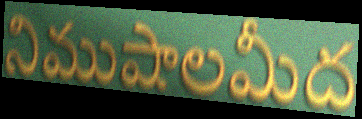
నిముషాలమీద